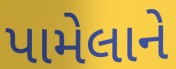
પામેલાને